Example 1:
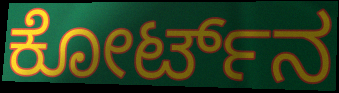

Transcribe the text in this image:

ಕೋರ್ಟ್‌ನ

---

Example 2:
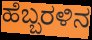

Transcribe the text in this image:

ಹೆಬ್ಬರಳಿನ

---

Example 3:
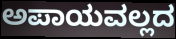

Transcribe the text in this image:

ಅಪಾಯವಲ್ಲದ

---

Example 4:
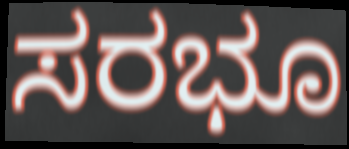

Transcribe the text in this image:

ಸರಭೂ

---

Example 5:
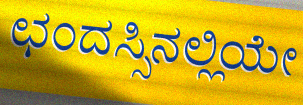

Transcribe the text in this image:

ಛಂದಸ್ಸಿನಲ್ಲಿಯೇ